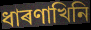
ধাৰণাখিনি